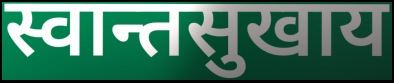
स्वान्तसुखाय